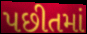
પછીતમાં